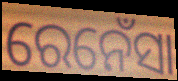
ରେନେଁସା